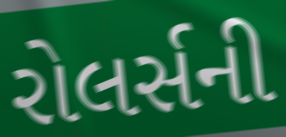
રોલર્સની